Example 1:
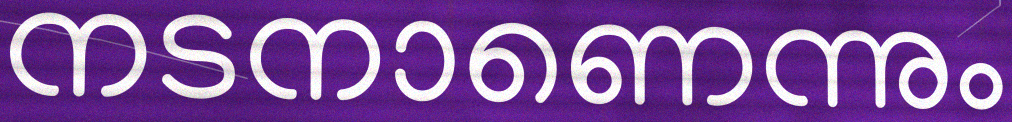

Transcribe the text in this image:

നടനാണെന്നും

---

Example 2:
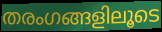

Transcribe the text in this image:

തരംഗങ്ങളിലൂടെ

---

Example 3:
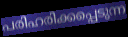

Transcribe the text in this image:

പരിഹരിക്കപ്പെടുന്ന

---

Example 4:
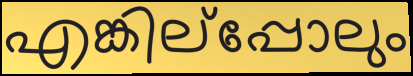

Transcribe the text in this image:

എങ്കില്പ്പോലും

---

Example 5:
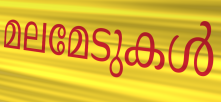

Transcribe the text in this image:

മലമേടുകൾ